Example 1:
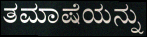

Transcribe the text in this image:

ತಮಾಷೆಯನ್ನು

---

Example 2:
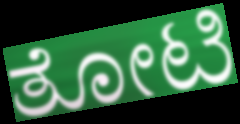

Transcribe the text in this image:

ತೋಟಿ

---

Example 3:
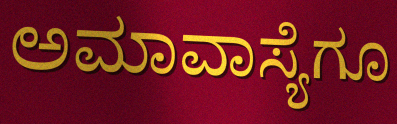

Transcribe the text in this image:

ಅಮಾವಾಸ್ಯೆಗೂ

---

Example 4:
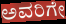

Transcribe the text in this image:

ಅವರಿಗೇ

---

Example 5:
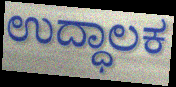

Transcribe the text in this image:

ಉದ್ಧಾಲಕ